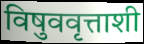
विषुववृत्ताशी